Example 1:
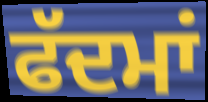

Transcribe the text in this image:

ਫੱਦਮਾਂ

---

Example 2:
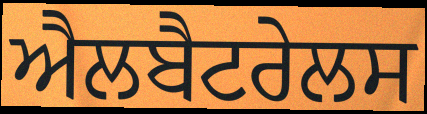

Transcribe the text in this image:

ਐਲਬੈਟਰੇਲਸ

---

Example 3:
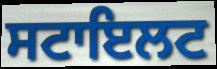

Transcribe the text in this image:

ਸਟਾਇਲਟ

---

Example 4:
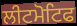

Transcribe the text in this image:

ਲੀਟਮੋਟਿਫ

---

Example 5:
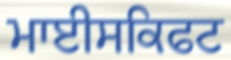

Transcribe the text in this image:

ਮਾਈਸਕਿਫਟ